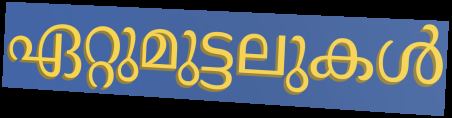
ഏറ്റുമുട്ടലുകൾ